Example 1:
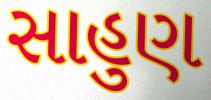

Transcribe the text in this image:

સાહુણ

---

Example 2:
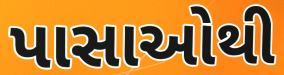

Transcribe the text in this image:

પાસાઓથી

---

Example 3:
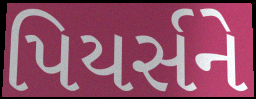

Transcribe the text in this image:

પિયર્સને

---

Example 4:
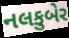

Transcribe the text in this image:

નલકુબેર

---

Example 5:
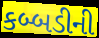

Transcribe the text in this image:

કબ્બડીની